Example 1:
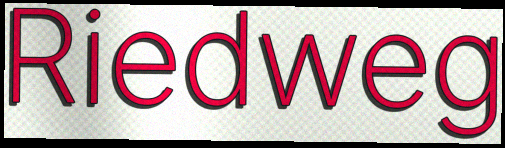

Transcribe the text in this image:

Riedweg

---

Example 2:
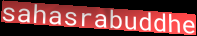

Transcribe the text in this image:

sahasrabuddhe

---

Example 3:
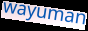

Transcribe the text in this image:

wayuman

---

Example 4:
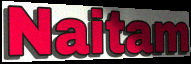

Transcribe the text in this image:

Naitam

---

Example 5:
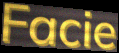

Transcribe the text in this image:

Facie